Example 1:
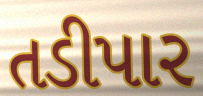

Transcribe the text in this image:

તડીપાર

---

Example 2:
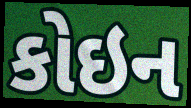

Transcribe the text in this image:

કોઇન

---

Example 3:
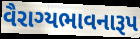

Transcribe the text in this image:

વૈરાગ્યભાવનારૂપ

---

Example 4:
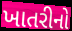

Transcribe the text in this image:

ખાતરીનો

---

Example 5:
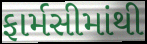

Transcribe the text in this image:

ફાર્મસીમાંથી